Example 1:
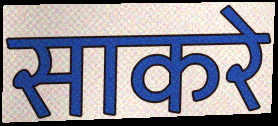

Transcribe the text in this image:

साकरे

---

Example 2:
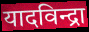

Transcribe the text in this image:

यादविन्द्रा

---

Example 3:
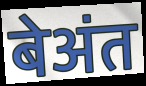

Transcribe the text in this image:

बेअंत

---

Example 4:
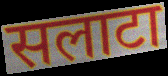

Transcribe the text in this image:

सलाटा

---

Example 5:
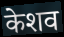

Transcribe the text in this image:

केशव